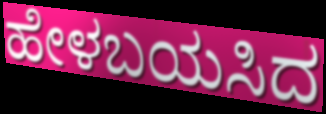
ಹೇಳಬಯಸಿದ